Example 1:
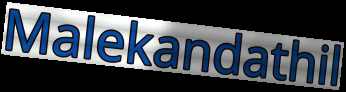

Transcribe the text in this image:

Malekandathil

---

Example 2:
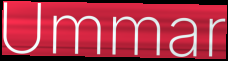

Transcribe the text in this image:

Ummar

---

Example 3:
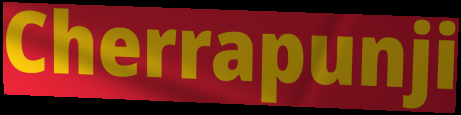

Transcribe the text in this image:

Cherrapunji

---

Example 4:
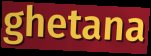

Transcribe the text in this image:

ghetana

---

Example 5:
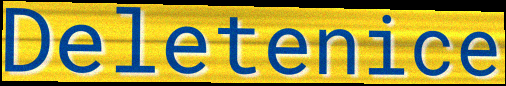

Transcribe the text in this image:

Deletenice